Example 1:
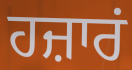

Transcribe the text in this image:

ਹਜ਼ਾਰਂ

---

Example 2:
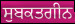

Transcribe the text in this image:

ਸੁਬਕਤਗੀਨ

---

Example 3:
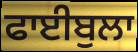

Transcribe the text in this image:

ਫਾਈਬੁਲਾ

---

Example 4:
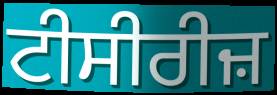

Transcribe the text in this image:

ਟੀਸੀਰੀਜ਼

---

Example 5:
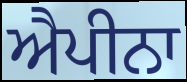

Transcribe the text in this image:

ਐਪੀਨਾ